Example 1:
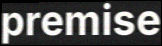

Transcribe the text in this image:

premise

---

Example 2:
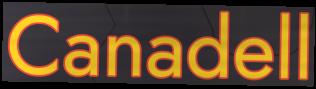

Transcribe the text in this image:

Canadell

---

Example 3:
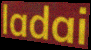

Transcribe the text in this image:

ladai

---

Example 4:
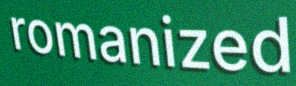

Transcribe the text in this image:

romanized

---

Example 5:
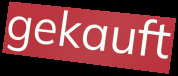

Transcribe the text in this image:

gekauft